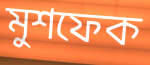
মুশফেক